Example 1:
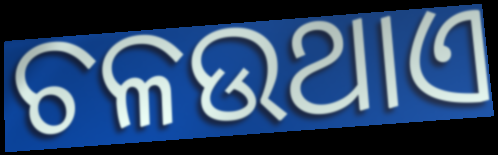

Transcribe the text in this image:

ଚଳଉଥାଏ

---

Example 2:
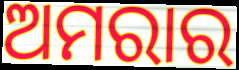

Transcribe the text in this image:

ଅମରାର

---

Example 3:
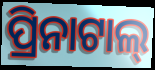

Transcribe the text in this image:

ପ୍ରିନାଟାଲ୍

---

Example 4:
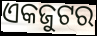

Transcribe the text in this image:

ଏକଜୁଟର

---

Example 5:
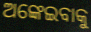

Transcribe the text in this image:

ଅଙ୍କେଇବାକୁ